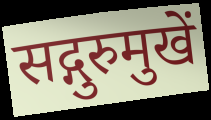
सद्गुरुमुखें